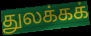
துலக்கக்